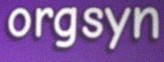
orgsyn